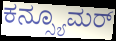
ಕನ್ಸ್ಯೂಮರ್